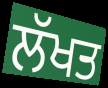
ਲੱਖਤ